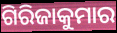
ଗିରିଜାକୁମାର